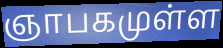
ஞாபகமுள்ள